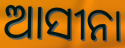
ଆସୀନା